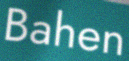
Bahen